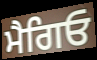
ਮੈਗਿਓ